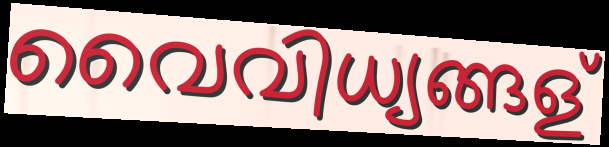
വൈവിധ്യങ്ങള്